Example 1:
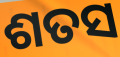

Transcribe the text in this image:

ଶତସ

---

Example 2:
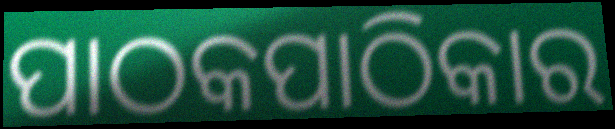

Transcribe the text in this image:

ପାଠକପାଠିକାର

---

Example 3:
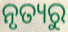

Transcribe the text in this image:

ନୃତ୍ୟରୁ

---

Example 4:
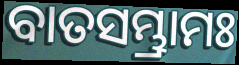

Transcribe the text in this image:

ବାତସମ୍ଭ୍ରାମଃ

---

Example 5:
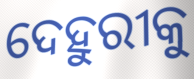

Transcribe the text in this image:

ଦେହୁରୀକୁ